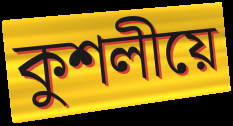
কুশলীয়ে